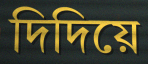
দিদিয়ে